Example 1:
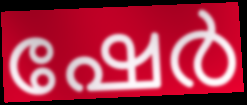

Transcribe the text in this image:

ഷേർ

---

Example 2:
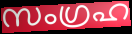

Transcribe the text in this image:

സംഗ്രഹ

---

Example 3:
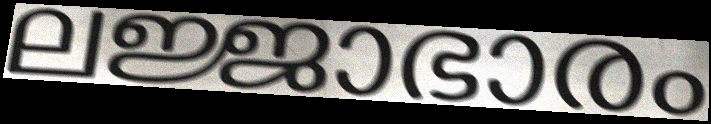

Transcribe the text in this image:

ലജ്ജാഭാരം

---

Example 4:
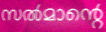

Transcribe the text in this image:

സൽമാന്റെ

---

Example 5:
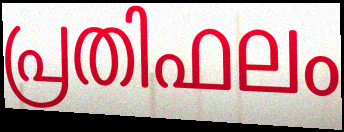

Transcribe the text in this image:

പ്രതിഫലം